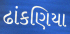
ઢાંકણિયા